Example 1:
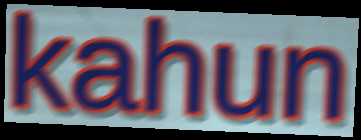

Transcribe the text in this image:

kahun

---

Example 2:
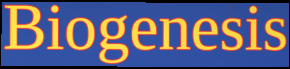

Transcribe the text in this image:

Biogenesis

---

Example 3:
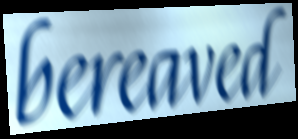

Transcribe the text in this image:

bereaved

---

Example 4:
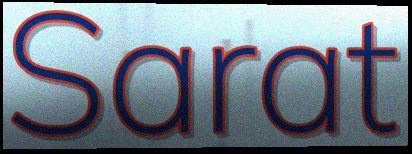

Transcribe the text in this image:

Sarat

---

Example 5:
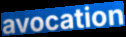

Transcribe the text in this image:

avocation